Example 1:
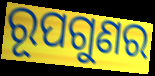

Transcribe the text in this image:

ରୂପଗୁଣର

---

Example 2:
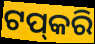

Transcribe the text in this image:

ଟପ୍‌କରି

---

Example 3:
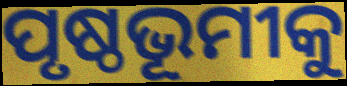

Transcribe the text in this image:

ପୃଷ୍ଠଭୂମୀକୁ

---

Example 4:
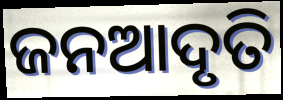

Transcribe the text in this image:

ଜନଆଦୃତି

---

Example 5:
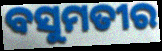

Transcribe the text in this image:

ବସୁମତୀର